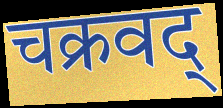
चक्रवद्